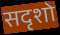
सदृशो